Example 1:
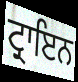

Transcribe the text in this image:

ਟ੍ਰਾਇਨ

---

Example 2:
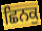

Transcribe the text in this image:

ਛਿਨਕੁ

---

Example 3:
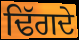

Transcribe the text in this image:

ਢਿੱਗਦੇ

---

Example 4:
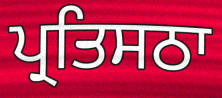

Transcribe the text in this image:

ਪ੍ਰਤਿਸਠਾ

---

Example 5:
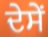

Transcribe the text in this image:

ਦੇਸੇਂ